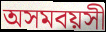
অসমবয়সী